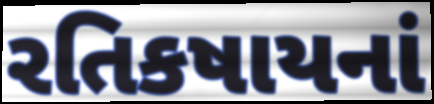
રતિકષાયનાં